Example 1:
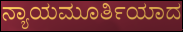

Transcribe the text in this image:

ನ್ಯಾಯಮೂರ್ತಿಯಾದ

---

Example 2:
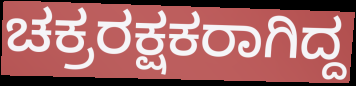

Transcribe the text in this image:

ಚಕ್ರರಕ್ಷಕರಾಗಿದ್ದ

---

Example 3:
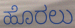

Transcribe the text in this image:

ಹೊರಲು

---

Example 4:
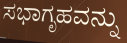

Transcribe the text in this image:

ಸಭಾಗೃಹವನ್ನು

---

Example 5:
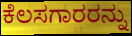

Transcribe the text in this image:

ಕೆಲಸಗಾರರನ್ನು